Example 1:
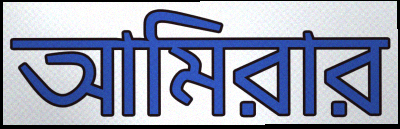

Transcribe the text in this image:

আমিরার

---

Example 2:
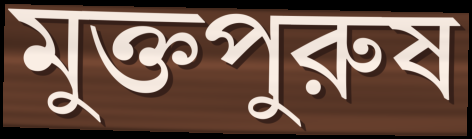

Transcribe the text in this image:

মুক্তপুরুষ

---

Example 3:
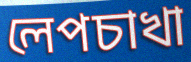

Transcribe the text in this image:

লেপচাখা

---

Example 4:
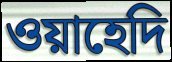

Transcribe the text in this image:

ওয়াহেদি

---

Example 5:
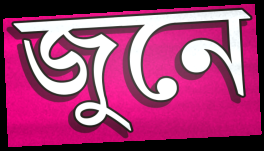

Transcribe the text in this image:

জুনে